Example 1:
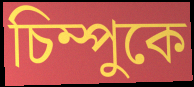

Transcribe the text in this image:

চিম্পুকে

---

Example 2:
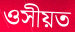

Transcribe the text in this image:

ওসীয়ত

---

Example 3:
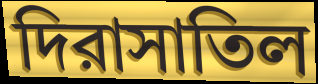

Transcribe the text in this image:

দিরাসাতিল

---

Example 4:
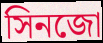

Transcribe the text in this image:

সিনজো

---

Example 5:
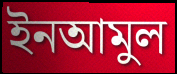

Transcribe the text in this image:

ইনআমুল